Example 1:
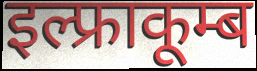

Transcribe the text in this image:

इल्फ्राकूम्ब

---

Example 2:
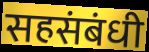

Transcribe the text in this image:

सहसंबंधी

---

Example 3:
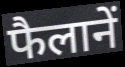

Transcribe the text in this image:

फैलानें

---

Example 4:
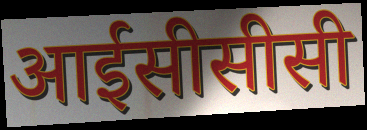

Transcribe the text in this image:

आईसीसीसी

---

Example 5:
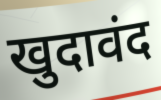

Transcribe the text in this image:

खुदावंद